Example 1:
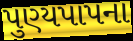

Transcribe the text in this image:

પુણ્યપાપના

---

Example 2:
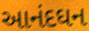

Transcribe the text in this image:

આનંદઘન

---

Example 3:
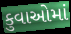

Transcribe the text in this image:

કુવાઓમાં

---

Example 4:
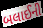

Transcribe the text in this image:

બલાઈની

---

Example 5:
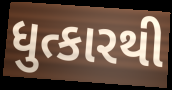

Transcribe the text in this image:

ધુત્કારથી